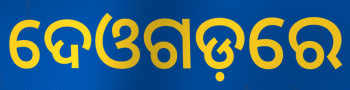
ଦେଓଗଡ଼ରେ